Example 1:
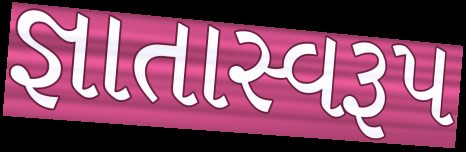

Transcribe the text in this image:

જ્ઞાતાસ્વરૂપ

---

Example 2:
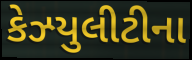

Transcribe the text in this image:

કેઝ્યુલીટીના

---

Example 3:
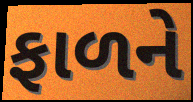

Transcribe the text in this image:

ફાળને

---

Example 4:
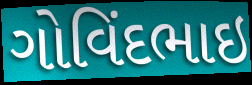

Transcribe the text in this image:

ગોવિંદભાઇ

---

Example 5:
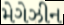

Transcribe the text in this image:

મેગેઝીન